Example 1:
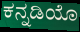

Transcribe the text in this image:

ಕನ್ನಡಿಯೊ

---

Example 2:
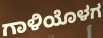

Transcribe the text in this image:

ಗಾಳಿಯೊಳಗ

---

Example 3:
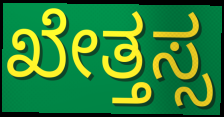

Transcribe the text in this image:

ಖೇತ್ತಸ್ಸ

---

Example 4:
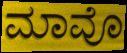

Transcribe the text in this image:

ಮಾವೊ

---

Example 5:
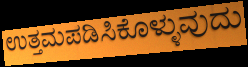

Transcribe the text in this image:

ಉತ್ತಮಪಡಿಸಿಕೊಳ್ಳುವುದು